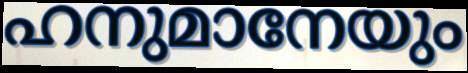
ഹനുമാനേയും